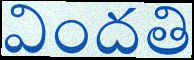
విందతి